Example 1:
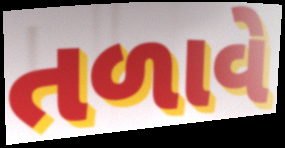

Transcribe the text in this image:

તળાવે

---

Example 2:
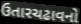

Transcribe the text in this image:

ઉતારચઢાવનો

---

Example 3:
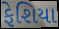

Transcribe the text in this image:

ફેશિયા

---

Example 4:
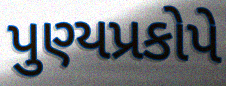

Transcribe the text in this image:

પુણ્યપ્રકોપે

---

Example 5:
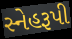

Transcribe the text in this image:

સ્નેહરૂપી